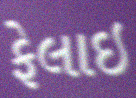
ફેલાઇ